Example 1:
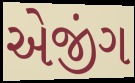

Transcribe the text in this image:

એજીંગ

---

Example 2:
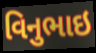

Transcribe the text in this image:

વિનુભાઇ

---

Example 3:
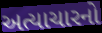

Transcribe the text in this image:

અત્યાચારનો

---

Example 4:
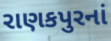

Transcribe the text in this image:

રાણકપુરનાં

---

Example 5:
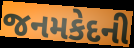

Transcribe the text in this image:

જનમકેદની